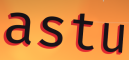
astu